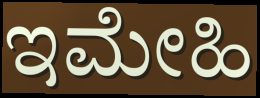
ಇಮೇಹಿ